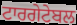
ਟਾਰਗੇਟੇਬਲ